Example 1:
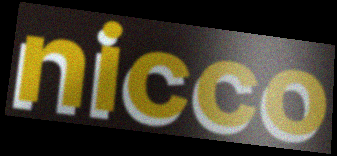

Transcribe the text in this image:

nicco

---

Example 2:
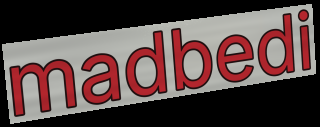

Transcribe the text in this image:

madbedi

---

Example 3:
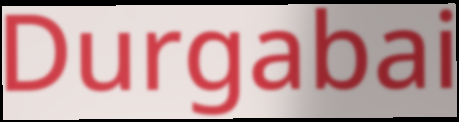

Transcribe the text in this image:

Durgabai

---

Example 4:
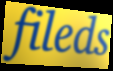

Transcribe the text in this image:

fileds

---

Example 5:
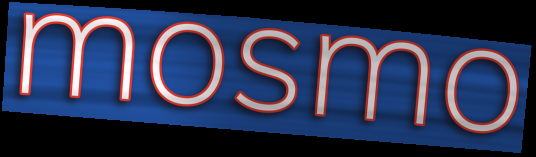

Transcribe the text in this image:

mosmo